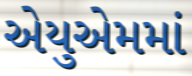
એયુએમમાં